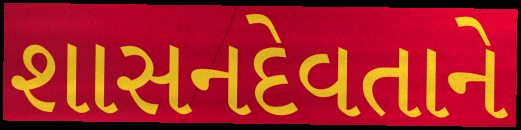
શાસનદેવતાને